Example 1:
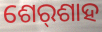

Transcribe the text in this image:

ଶେର୍‌ଶାହ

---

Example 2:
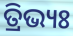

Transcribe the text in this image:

ତ୍ରିଭ୍ୟଃ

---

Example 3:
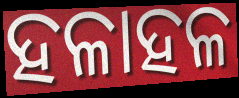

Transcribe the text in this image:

ହଳାହଳ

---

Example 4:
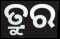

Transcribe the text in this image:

ତ୍ରୁର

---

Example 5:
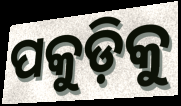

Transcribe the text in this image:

ପକୁଡ଼ିକୁ